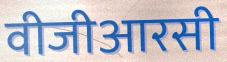
वीजीआरसी